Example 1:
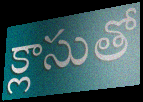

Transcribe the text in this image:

క్లాసుతో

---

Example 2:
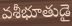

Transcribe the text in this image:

వశీభూతుడై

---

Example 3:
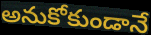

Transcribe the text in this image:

అనుకోకుండానే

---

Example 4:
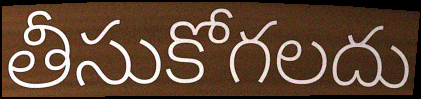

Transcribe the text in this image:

తీసుకోగలదు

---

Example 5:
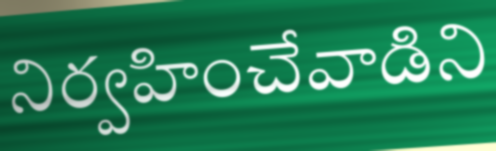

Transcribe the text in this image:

నిర్వహించేవాడిని